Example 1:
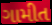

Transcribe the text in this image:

ગામીત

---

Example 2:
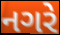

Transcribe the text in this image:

નગરે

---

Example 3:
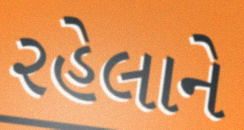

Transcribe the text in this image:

રહેલાને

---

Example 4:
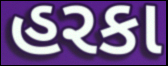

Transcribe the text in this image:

હરકા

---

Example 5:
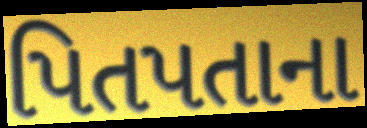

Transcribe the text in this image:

પિતપતાના